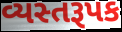
વ્યસ્તરૂપક